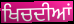
ਖਿਚਦੀਆਂ